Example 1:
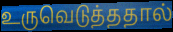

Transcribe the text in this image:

உருவெடுத்ததால்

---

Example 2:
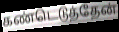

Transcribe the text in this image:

கண்டெடுத்தேன்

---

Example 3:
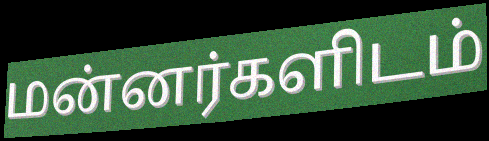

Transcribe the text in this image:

மன்னர்களிடம்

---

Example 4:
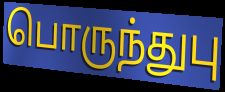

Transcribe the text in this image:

பொருந்துபு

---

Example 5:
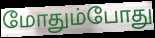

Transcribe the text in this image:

மோதும்போது